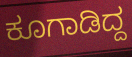
ಕೂಗಾಡಿದ್ದ